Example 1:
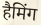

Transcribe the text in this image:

हैमिंग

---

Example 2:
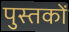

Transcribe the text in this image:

पुस्तकों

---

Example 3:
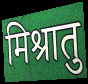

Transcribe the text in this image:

मिश्रातु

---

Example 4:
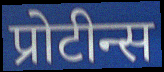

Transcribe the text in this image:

प्रोटीन्स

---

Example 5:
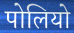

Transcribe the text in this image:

पोलियो